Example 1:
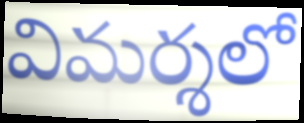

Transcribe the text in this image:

విమర్శలో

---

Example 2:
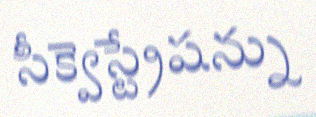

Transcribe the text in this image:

సీక్వెస్ట్రేషన్ను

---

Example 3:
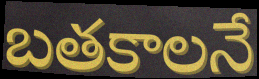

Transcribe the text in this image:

బతకాలనే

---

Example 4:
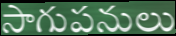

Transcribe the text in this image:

సాగుపనులు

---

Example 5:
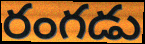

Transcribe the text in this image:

రంగడు